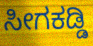
ಸೀಗಕಡ್ಡಿ